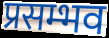
प्रसम्भव